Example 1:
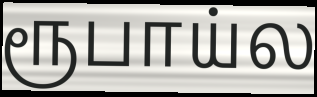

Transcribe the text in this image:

ரூபாய்ல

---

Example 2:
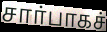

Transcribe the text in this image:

சார்பாகச்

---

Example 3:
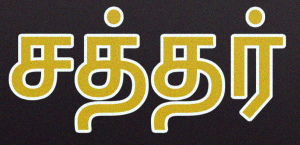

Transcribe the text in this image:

சத்தர்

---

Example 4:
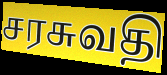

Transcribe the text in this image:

சரசுவதி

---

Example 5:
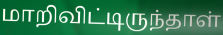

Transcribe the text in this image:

மாறிவிட்டிருந்தாள்